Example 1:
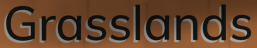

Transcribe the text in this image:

Grasslands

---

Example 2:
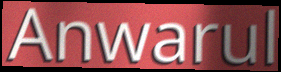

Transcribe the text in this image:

Anwarul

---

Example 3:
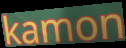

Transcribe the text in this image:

kamon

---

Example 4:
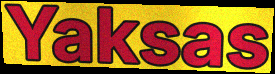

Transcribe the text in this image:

Yaksas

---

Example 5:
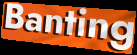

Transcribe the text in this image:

Banting